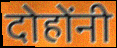
दोहोंनी